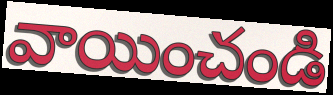
వాయించండి